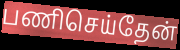
பணிசெய்தேன்